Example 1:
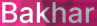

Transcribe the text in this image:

Bakhar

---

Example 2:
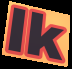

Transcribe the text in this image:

lk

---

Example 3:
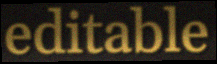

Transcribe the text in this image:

editable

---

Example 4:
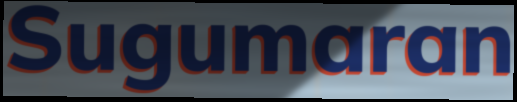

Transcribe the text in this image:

Sugumaran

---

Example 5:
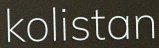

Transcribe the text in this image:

kolistan